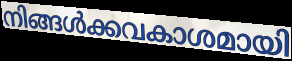
നിങ്ങൾക്കവകാശമായി